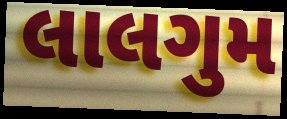
લાલગુમ